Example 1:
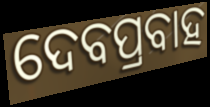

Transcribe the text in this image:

ଦେବପ୍ରବାହ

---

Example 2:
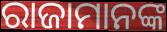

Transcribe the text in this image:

ରାଜାମାନଙ୍କ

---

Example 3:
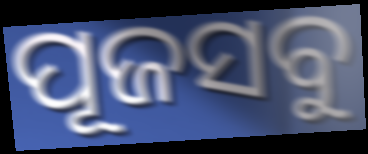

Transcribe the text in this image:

ପୂଜସବୁ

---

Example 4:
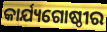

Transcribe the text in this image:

କାର୍ଯ୍ୟଗୋଷ୍ଠୀର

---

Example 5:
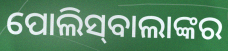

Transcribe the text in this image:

ପୋଲିସ୍‌ବାଲାଙ୍କର